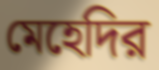
মেহেদির